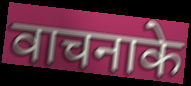
वाचनाके